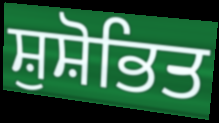
ਸ਼ੁਸ਼ੋਭਿਤ